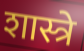
शास्त्रे